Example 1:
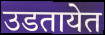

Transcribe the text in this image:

उडतायेत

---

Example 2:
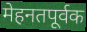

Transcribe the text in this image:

मेहनतपूर्वक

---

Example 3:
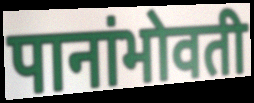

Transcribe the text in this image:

पानांभोवती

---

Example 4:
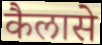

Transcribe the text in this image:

कैलासे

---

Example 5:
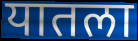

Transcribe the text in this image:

यातला